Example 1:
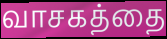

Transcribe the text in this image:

வாசகத்தை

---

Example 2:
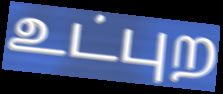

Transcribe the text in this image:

உட்புற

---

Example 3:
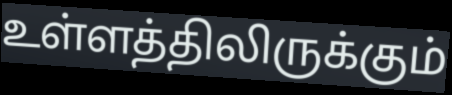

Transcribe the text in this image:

உள்ளத்திலிருக்கும்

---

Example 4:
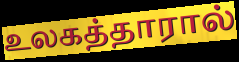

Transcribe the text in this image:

உலகத்தாரால்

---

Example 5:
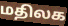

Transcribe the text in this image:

மதிலக